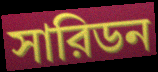
সারিডন